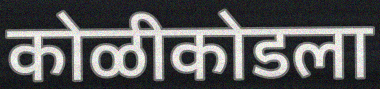
कोळीकोडला